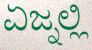
ಏಜ್ನಲ್ಲಿ